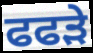
ਫਫਡ਼ੇ